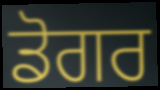
ਡੋਗਰ